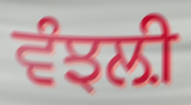
ਵੰਝਲ਼ੀ